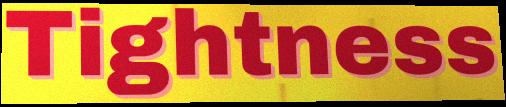
Tightness